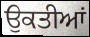
ਉਕਤੀਆਂ